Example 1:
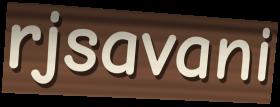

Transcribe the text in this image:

rjsavani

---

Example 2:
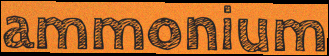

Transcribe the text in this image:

ammonium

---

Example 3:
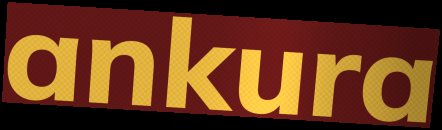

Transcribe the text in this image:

ankura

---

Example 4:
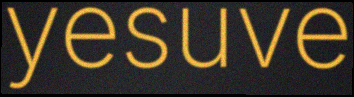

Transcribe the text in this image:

yesuve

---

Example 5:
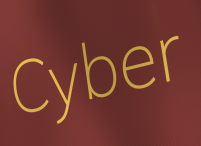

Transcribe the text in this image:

Cyber